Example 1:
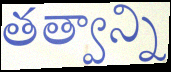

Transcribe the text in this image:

తత్వాన్ని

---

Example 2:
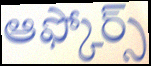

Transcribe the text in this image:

ఆఫ్కోర్స్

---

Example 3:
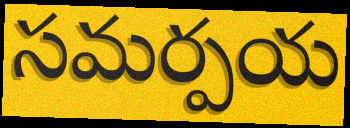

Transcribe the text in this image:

సమర్పయ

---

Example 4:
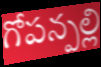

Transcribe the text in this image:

గోపన్పల్లి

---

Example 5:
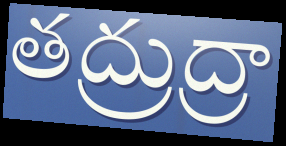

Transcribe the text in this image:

తద్రుద్రా